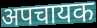
अपचायक